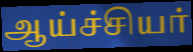
ஆய்ச்சியர்